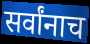
सर्वांनाच